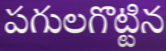
పగులగొట్టిన